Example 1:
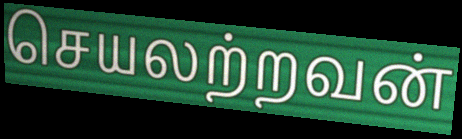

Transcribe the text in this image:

செயலற்றவன்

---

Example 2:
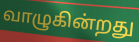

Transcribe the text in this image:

வாழுகின்றது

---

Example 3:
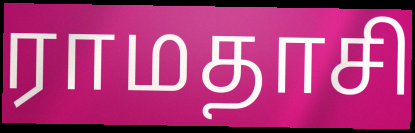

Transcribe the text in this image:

ராமதாசி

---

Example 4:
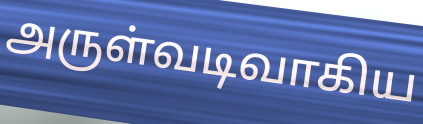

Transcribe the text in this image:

அருள்வடிவாகிய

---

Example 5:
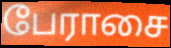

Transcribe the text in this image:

பேராசை